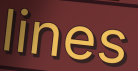
lines